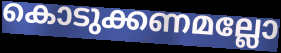
കൊടുക്കണമല്ലോ